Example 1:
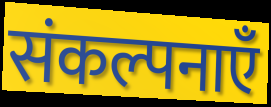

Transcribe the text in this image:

संकल्पनाएँ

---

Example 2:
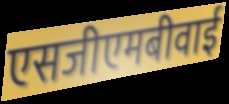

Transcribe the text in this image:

एसजीएमबीवाई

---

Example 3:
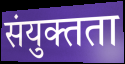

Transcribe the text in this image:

संयुक्तता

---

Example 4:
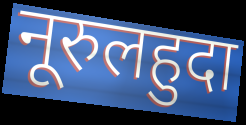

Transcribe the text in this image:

नूरुलहुदा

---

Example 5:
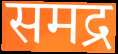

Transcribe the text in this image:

समद्र